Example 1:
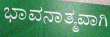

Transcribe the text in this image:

ಭಾವನಾತ್ಮವಾಗಿ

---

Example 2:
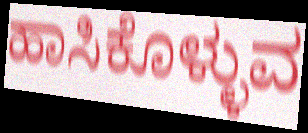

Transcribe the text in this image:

ಹಾಸಿಕೊಳ್ಳುವ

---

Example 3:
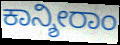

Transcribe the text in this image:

ಕಾನ್ಶೀರಾಂ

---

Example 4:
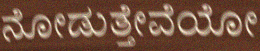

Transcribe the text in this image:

ನೋಡುತ್ತೇವೆಯೋ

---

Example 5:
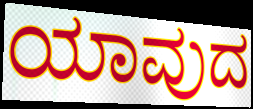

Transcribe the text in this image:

ಯಾವುದ